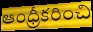
ఆంధ్రీకరించి